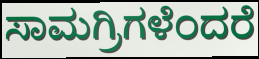
ಸಾಮಗ್ರಿಗಳೆಂದರೆ